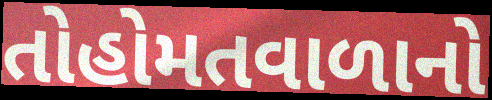
તોહોમતવાળાનો